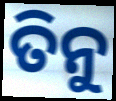
ତିନୁ